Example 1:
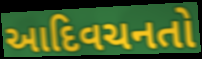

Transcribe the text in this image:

આદિવચનતો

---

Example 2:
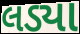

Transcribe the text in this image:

લડ્યા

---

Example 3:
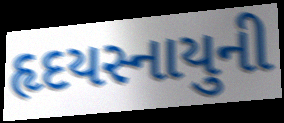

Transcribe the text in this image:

હૃદયસ્નાયુની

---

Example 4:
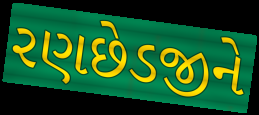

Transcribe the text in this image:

રણછેડજીને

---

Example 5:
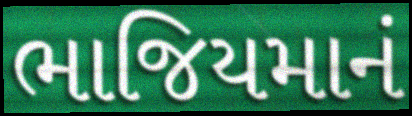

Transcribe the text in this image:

ભાજિયમાનં